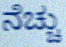
ನೆಚ್ಚು